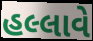
હલ્લાવે